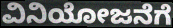
ವಿನಿಯೋಜನೆಗೆ